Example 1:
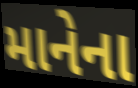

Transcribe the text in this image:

માનેના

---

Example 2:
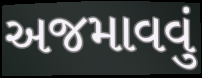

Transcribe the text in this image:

અજમાવવું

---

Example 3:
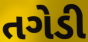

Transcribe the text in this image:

તગેડી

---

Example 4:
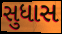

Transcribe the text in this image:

સુધાસ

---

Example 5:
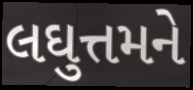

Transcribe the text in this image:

લઘુત્તમને